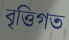
বৃত্তিগত